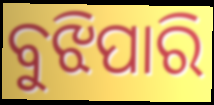
ବୁଝିପାରି